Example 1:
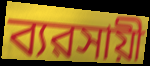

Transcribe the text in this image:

ব্যৱসায়ী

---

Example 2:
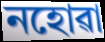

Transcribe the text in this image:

নহোৱা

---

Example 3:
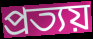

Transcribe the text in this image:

প্ৰত্যয়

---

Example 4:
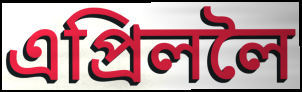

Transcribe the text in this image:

এপ্ৰিললৈ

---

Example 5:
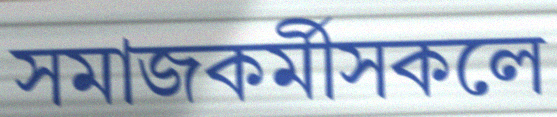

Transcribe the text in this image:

সমাজকৰ্মীসকলে